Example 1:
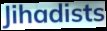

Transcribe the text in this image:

Jihadists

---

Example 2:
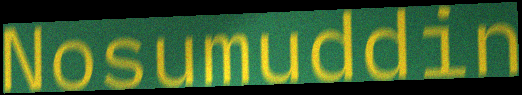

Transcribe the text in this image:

Nosumuddin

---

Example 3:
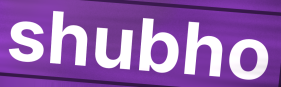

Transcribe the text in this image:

shubho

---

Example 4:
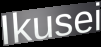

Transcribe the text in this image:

Ikusei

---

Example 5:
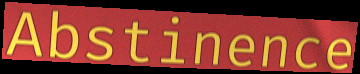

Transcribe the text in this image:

Abstinence